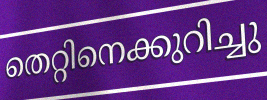
തെറ്റിനെക്കുറിച്ചു